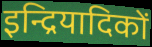
इन्द्रियादिकों